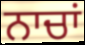
ਨਾਚਾਂ